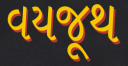
વયજૂથ